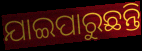
ଯାଇପାରୁଛନ୍ତି